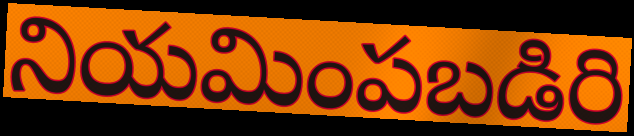
నియమింపబడిరి